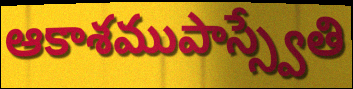
ఆకాశముపాస్స్వేతి